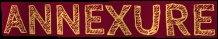
ANNEXURE